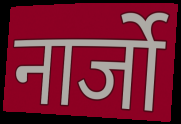
नार्जो